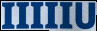
IIIIIU